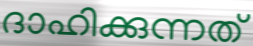
ദാഹിക്കുന്നത്